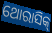
ଥୋରାସିକ୍